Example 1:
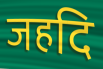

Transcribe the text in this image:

जहदि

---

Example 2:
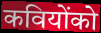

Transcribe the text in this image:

कवियोंको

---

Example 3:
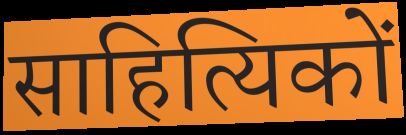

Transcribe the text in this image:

साहित्यिकों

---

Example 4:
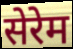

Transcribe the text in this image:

सेरेम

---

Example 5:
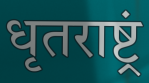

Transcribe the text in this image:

धृतराष्ट्रं